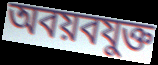
অবয়বযুক্ত